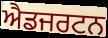
ਐਡਜਰਟਨ